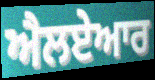
ਐਲਏਆਰ